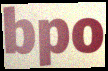
bpo